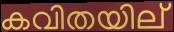
കവിതയില്